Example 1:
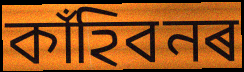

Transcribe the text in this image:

কাঁহিবনৰ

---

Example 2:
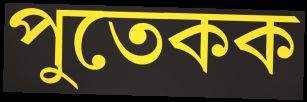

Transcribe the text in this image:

পুতেকক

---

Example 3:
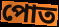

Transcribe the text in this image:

পোত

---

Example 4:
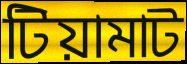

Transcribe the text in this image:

টিয়ামাট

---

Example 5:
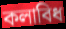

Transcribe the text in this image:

কলাবিধ